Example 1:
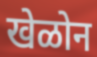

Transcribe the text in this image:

खेळोन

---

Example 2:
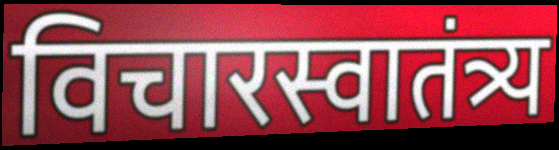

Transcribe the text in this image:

विचारस्वातंत्र्य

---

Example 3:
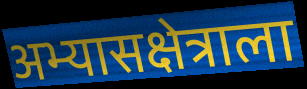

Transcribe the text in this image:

अभ्यासक्षेत्राला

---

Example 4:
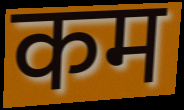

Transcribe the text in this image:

कम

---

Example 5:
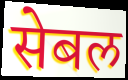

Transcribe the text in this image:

सेबल